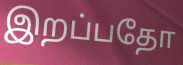
இறப்பதோ